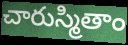
చారుస్మితాం